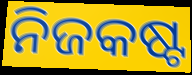
ନିଜକଷ୍ଟ